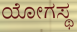
ಯೋಗಸ್ಥ